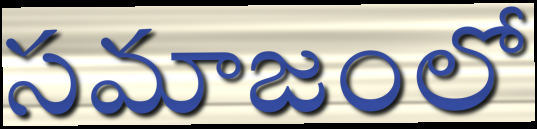
సమాజంలో